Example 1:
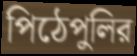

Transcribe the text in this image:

পিঠেপুলির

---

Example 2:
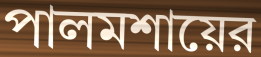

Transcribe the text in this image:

পালমশায়ের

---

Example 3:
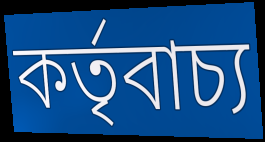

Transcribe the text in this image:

কর্তৃবাচ্য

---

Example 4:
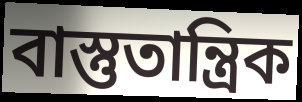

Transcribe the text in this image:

বাস্তুতান্ত্রিক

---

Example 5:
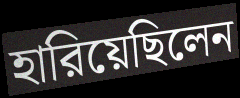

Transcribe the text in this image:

হারিয়েছিলেন